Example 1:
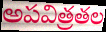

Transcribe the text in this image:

అపవిత్రతల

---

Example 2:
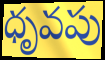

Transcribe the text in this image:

ధృవపు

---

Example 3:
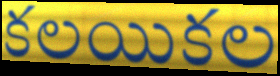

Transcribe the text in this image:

కలయికల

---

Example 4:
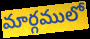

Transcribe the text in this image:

మార్గములో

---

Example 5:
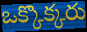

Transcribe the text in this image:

ఒక్కొక్కరు